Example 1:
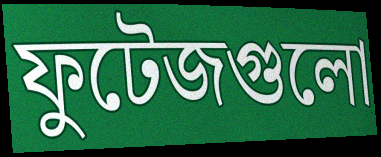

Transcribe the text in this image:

ফুটেজগুলো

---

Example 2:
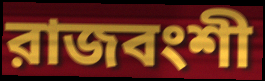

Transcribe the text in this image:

রাজবংশী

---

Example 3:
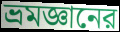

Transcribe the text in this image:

ভ্রমজ্ঞানের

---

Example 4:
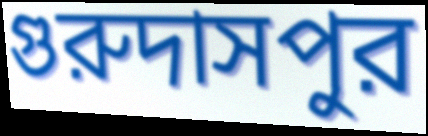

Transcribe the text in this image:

গুরুদাসপুর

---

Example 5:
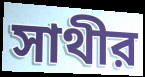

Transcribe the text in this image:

সাথীর